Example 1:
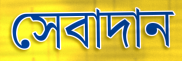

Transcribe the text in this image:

সেবাদান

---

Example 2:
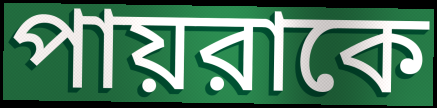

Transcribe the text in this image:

পায়রাকে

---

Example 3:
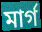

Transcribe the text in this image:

মার্গ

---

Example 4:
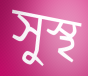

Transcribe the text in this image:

সুস্থ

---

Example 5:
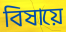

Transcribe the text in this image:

বিষায়ে